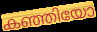
കഞ്ഞിയോ